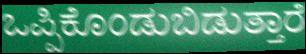
ಒಪ್ಪಿಕೊಂಡುಬಿಡುತ್ತಾರೆ